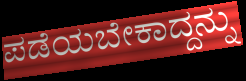
ಪಡೆಯಬೇಕಾದ್ದನ್ನು